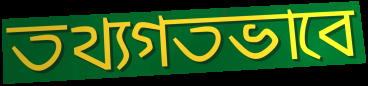
তথ্যগতভাবে